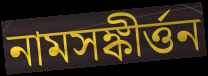
নামসঙ্কীর্ত্তন